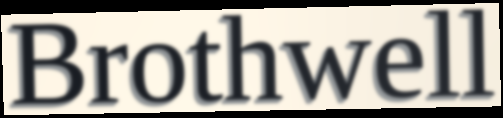
Brothwell